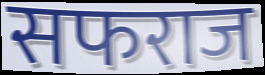
सफराज